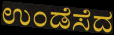
ಉಂಡೆಸೆದ